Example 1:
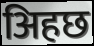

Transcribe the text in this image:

अिहछ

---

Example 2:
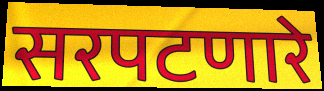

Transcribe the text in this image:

सरपटणारे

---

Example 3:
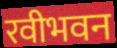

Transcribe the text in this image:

रवीभवन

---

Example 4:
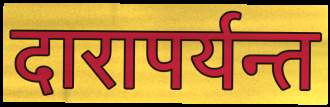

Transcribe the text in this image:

दारापर्यन्त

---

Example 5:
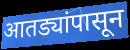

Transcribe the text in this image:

आतड्यांपासून